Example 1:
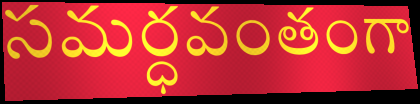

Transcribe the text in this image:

సమర్ధవంతంగా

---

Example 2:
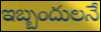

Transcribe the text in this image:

ఇబ్బందులనే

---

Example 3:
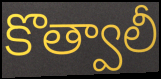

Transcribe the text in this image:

కొత్వాలీ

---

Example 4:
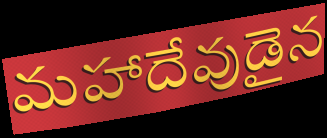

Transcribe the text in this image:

మహాదేవుడైన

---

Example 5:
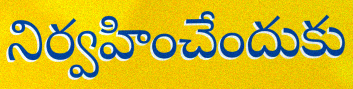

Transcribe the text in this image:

నిర్వహించేందుకు